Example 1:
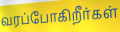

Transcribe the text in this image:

வரப்போகிறீர்கள்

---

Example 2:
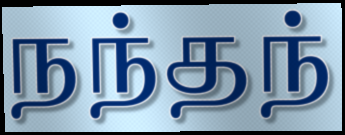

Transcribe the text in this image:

நந்தந்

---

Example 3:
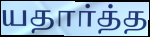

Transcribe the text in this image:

யதார்த்த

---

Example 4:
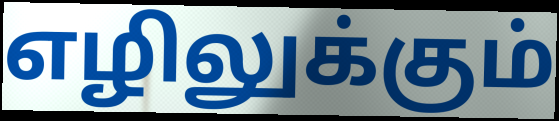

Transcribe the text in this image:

எழிலுக்கும்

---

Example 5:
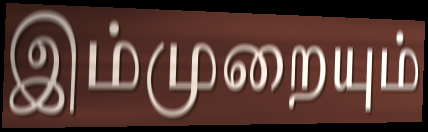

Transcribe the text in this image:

இம்முறையும்